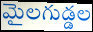
మైలగుడ్డల